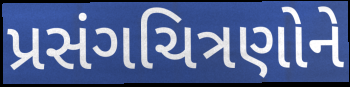
પ્રસંગચિત્રણોને